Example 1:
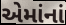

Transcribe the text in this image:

એમાંનાં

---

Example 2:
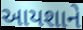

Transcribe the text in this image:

આયશાને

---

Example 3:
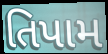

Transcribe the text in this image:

તિપામ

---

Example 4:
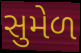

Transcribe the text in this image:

સુમેળ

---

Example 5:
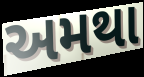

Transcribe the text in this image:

અમથા